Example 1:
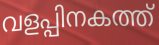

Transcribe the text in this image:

വളപ്പിനകത്ത്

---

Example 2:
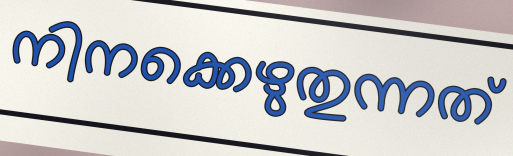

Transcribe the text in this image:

നിനക്കെഴുതുന്നത്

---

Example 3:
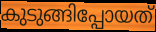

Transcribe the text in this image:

കുടുങ്ങിപ്പോയത്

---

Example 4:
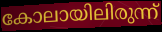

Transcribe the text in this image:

കോലായിലിരുന്ന്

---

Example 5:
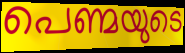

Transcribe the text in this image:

പെണ്മയുടെ